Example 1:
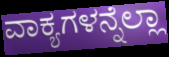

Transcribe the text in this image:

ವಾಕ್ಯಗಳನ್ನೆಲ್ಲಾ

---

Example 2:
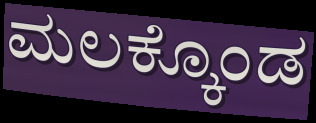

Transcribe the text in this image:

ಮಲಕ್ಕೊಂಡ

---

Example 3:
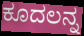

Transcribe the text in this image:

ಕೂದಲನ್ನ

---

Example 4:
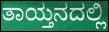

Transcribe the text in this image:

ತಾಯ್ತನದಲ್ಲಿ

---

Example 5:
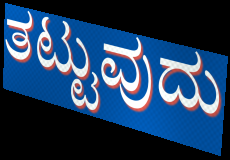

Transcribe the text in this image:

ತಟ್ಟುವುದು